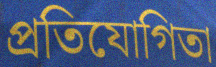
প্ৰতিযোগিতা